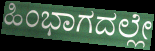
ಹಿಂಭಾಗದಲ್ಲೇ